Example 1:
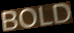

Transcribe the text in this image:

BOLD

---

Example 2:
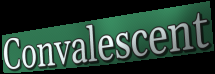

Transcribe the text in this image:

Convalescent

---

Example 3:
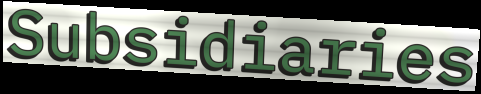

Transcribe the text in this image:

Subsidiaries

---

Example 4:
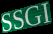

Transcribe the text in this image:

SSGI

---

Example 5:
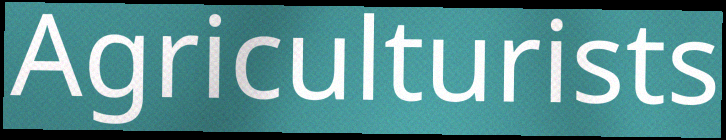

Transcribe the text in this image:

Agriculturists